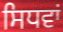
ਸਿਧਵਾਂ